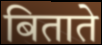
बिताते